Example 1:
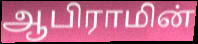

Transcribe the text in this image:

ஆபிராமின்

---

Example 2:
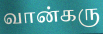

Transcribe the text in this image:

வான்கரு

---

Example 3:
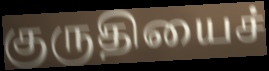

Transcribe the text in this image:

குருதியைச்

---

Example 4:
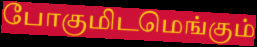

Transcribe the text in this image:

போகுமிடமெங்கும்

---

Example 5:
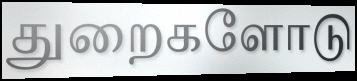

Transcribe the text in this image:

துறைகளோடு